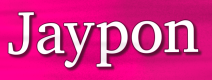
Jaypon